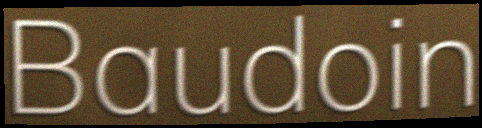
Baudoin